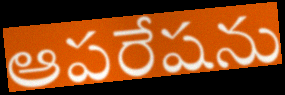
ఆపరేషను